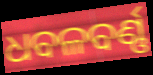
ଧବଳବର୍ଣ୍ଣ